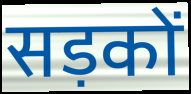
सड़कों